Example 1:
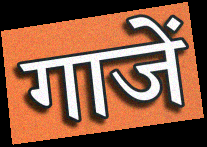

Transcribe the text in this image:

गाजें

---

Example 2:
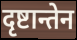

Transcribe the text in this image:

दृष्टान्तेन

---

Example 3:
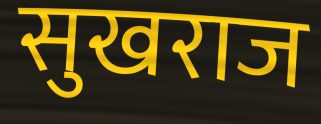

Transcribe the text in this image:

सुखराज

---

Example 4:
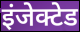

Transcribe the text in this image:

इंजेक्टेड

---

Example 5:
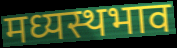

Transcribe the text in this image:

मध्यस्थभाव